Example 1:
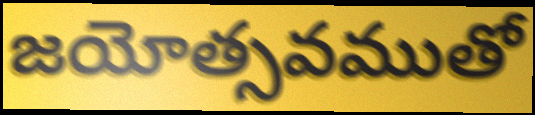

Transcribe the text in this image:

జయోత్సవముతో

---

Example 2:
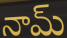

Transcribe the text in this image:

నామ్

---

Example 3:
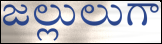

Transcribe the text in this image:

జల్లులుగా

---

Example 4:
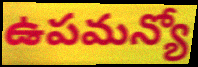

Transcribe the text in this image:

ఉపమన్యో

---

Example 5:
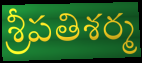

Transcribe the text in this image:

శ్రీపతిశర్మ